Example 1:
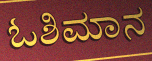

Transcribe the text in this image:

ಓಶಿಮಾನ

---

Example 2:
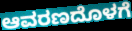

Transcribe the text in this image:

ಆವರಣದೊಳಗೆ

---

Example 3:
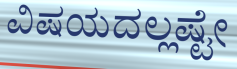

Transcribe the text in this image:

ವಿಷಯದಲ್ಲಷ್ಟೇ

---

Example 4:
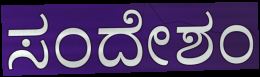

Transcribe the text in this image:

ಸಂದೇಶಂ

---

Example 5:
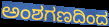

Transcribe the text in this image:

ಅಂಶಗಣದಿಂದ